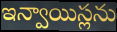
ఇన్వాయిస్లను